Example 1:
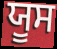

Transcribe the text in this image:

ਯੂਸ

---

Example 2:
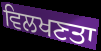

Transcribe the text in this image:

ਵਿਲਖਣਤਾ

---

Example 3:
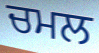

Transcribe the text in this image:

ਚਮਲ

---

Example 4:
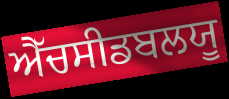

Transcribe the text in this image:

ਐੱਚਸੀਡਬਲਯੂ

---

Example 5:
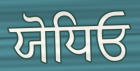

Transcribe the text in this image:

ਯੋਧਿਓ